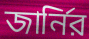
জার্নির